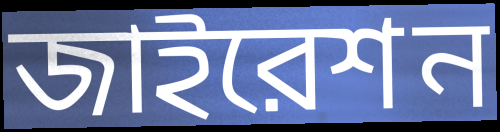
জাইরেশন